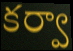
కర్వా